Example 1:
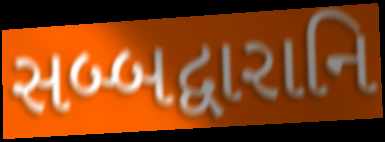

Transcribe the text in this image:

સબ્બદ્વારાનિ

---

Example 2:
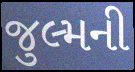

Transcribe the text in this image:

જુલ્મની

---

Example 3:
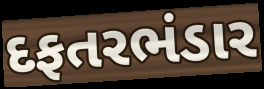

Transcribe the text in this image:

દફતરભંડાર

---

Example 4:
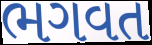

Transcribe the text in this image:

ભગવત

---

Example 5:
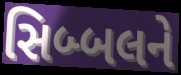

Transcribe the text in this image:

સિબ્બલને